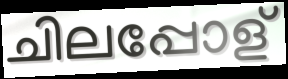
ചിലപ്പോള്